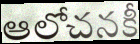
ఆలోచనకీ